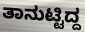
ತಾನುಟ್ಟಿದ್ದ